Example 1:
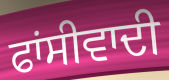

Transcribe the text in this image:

ਫਾਂਸੀਵਾਦੀ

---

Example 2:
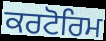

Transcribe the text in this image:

ਕਰਟੋਰਿਮ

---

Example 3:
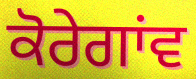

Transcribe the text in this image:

ਕੋਰੇਗਾਂਵ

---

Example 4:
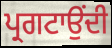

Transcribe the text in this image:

ਪ੍ਰਗਟਾਉਂਦੀ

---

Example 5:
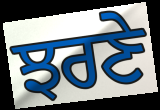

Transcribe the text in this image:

ਝਰਣੇ